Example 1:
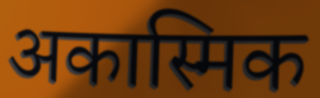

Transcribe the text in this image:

अकास्मिक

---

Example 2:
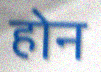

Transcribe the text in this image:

होन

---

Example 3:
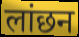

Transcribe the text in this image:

लांछन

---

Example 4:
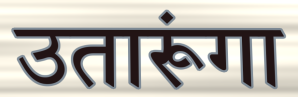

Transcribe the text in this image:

उतारूंगा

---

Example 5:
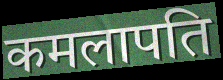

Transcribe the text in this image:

कमलापति